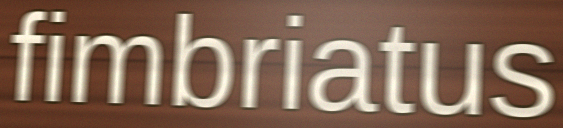
fimbriatus